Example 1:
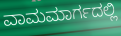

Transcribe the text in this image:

ವಾಮಮಾರ್ಗದಲ್ಲಿ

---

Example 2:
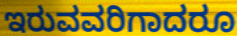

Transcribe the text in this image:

ಇರುವವರಿಗಾದರೂ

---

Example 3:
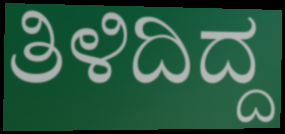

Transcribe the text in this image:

ತಿಳಿದಿದ್ದ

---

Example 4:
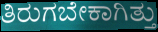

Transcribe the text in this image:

ತಿರುಗಬೇಕಾಗಿತ್ತು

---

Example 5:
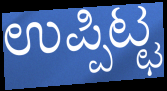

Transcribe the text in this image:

ಉಪ್ಪಿಟ್ಟ